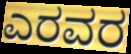
ಎರವರ